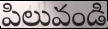
పిలువండి